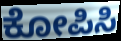
ಕೋಪಿಸಿ